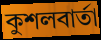
কুশলবার্তা